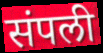
संपली